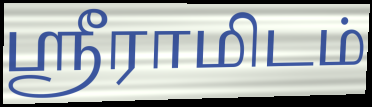
ஸ்ரீராமிடம்